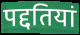
पद्दतियां